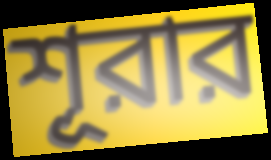
শূরার